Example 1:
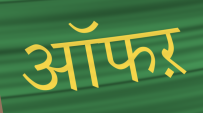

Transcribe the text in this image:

ऑफऱ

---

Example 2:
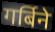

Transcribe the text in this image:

गर्बिने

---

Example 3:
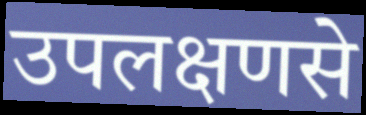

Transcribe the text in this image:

उपलक्षणसे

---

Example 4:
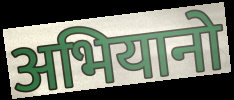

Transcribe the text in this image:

अभियानो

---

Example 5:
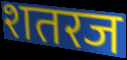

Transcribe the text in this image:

शतरज